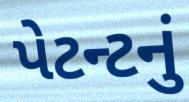
પેટન્ટનું